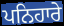
ਪਨਿਹਾਰੇ